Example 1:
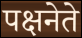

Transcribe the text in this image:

पक्षनेते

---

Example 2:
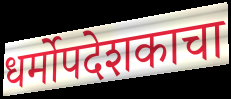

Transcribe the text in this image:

धर्मोपदेशकाचा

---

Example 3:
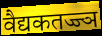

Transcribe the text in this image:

वैद्यकतज्ज्ञ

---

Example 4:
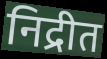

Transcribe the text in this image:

निद्रीत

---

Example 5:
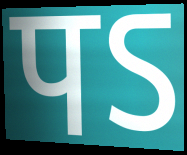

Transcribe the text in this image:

पऽ